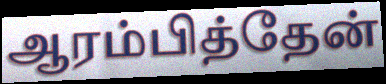
ஆரம்பித்தேன்